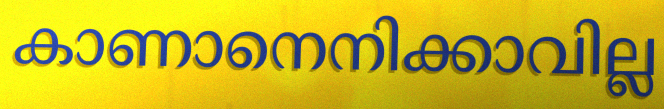
കാണാനെനിക്കാവില്ല